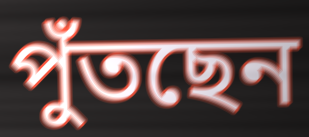
পুঁতছেন